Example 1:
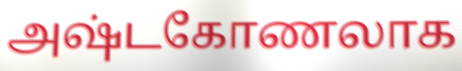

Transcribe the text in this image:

அஷ்டகோணலாக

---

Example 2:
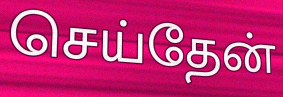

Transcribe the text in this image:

செய்தேன்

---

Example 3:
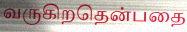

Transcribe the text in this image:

வருகிறதென்பதை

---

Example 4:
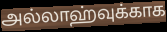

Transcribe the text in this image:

அல்லாஹ்வுக்காக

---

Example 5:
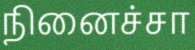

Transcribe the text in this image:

நினைச்சா